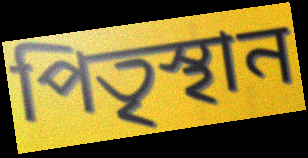
পিতৃস্থান